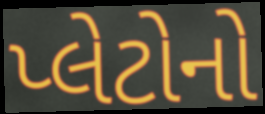
પ્લેટોનો